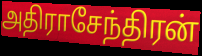
அதிராசேந்திரன்